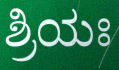
ಶ್ರಿಯಃ